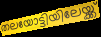
തലയോട്ടിയിലേയ്ക്ക്